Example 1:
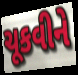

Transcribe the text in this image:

ચૂકવીને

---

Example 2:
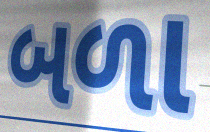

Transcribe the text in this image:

બળા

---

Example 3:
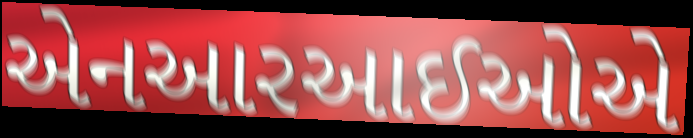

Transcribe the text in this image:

એનઆરઆઈઓએ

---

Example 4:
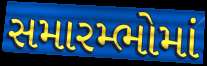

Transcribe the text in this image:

સમારમ્ભોમાં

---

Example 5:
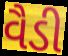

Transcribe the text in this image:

વૈડી